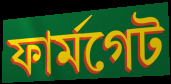
ফার্মগেট